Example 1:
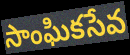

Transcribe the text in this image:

సాంఘికసేవ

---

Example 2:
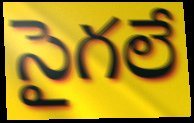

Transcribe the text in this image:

సైగలే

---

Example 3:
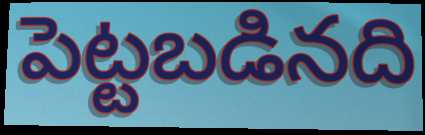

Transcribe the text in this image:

పెట్టబడినది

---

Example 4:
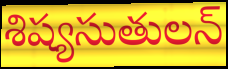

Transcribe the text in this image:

శిష్యసుతులన్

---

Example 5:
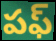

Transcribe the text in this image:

పఫ్